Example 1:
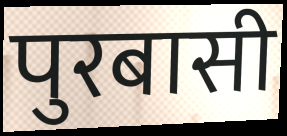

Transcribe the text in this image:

पुरबासी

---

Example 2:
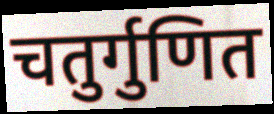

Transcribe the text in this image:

चतुर्गुणित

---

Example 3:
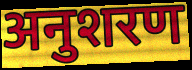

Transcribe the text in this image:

अनुशरण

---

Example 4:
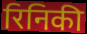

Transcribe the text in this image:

रिनिकी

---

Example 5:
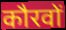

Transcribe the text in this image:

कौरवों